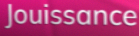
Jouissance